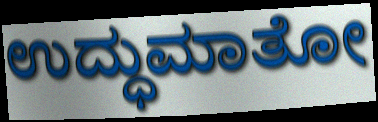
ಉದ್ಧುಮಾತೋ